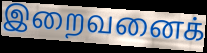
இறைவனைக்